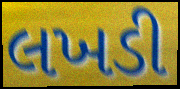
લખડી